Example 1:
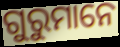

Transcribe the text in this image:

ଗୁରୁମାନେ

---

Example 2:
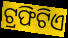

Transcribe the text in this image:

ଟ୍ରଫିଟିଏ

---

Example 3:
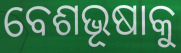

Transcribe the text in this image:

ବେଶଭୂଷାକୁ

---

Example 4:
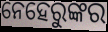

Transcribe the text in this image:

ନେହେରୁଙ୍କର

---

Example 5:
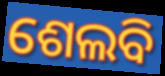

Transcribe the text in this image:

ଶେଲବି